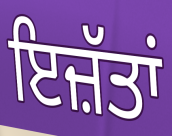
ਇਜ਼ੱਤਾਂ